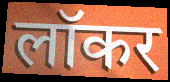
लॉकर